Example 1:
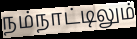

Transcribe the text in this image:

நம்நாட்டிலும்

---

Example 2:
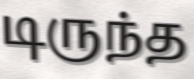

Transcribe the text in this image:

டிருந்த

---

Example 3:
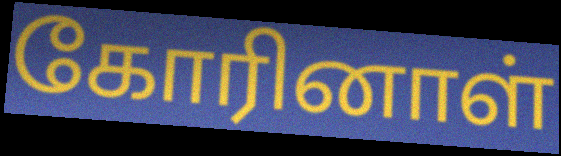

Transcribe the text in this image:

கோரினாள்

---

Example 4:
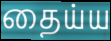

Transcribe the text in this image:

தைய்ய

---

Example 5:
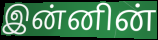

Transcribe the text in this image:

இன்னின்